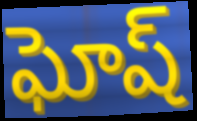
ఘోష్